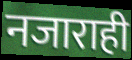
नजाराही